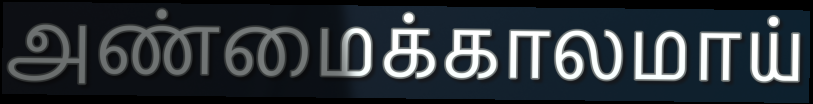
அண்மைக்காலமாய்